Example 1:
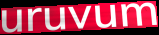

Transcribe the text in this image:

uruvum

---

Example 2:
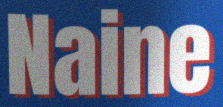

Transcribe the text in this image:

Naine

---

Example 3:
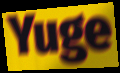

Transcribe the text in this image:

Yuge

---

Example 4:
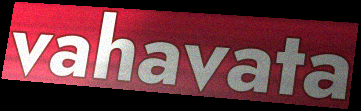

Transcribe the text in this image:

vahavata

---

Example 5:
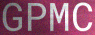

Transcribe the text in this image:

GPMC